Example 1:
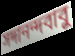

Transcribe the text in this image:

সদানন্দবাবু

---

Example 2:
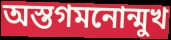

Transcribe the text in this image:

অস্তগমনোন্মুখ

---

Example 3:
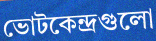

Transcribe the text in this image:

ভোটকেন্দ্রগুলো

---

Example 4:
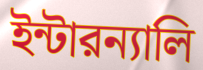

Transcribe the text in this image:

ইন্টারন্যালি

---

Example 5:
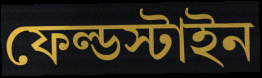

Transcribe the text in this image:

ফেল্ডস্টাইন